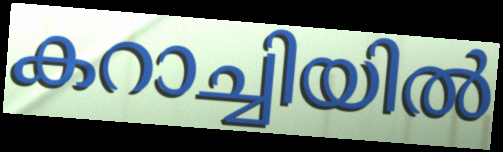
കറാച്ചിയിൽ